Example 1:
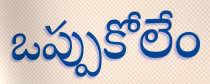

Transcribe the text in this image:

ఒప్పుకోలేం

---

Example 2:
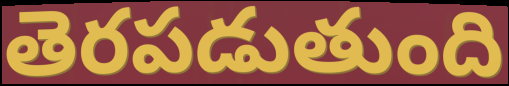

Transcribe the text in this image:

తెరపడుతుంది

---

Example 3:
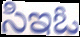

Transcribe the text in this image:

సిఇఓ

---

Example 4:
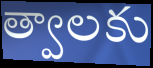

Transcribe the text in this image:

త్వాలకు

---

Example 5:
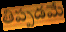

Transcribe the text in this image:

తిప్పడమే